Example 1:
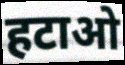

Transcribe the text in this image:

हटाओ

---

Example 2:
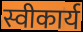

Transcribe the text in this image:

स्‍वीकार्य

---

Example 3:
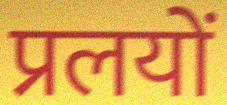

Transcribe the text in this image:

प्रलयों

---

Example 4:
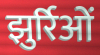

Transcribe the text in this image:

झुर्रिओं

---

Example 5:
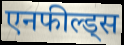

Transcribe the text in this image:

एनफील्ड्स